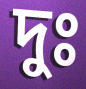
দুঃ